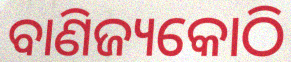
ବାଣିଜ୍ୟକୋଠି